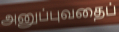
அனுப்புவதைப்